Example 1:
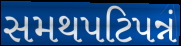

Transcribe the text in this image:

સમથપટિપન્નં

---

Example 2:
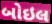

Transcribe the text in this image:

બોઇલ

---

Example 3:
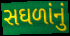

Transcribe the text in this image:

સઘળાંનું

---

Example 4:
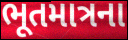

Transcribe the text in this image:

ભૂતમાત્રના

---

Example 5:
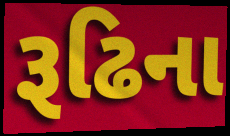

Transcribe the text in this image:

રૂઢિના